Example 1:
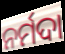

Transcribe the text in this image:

ନର୍ମଦା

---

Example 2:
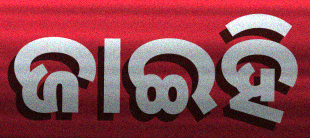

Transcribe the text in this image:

ଜାଇହି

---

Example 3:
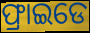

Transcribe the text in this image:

ଫ୍ରାଇଡେ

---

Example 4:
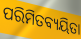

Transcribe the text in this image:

ପରିମିତବ୍ୟୟିତା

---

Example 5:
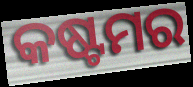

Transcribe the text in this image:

କଷ୍ଟମର